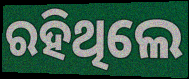
ରହିଥିଲେ